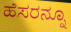
ಹೆಸರನ್ನೂ